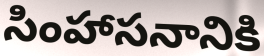
సింహాసనానికి